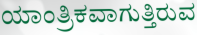
ಯಾಂತ್ರಿಕವಾಗುತ್ತಿರುವ